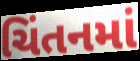
ચિંતનમાં